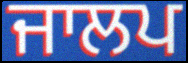
ਜਾਲਪ